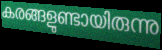
കരങ്ങളുണ്ടായിരുന്നു